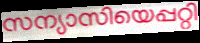
സന്യാസിയെപ്പറ്റി